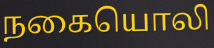
நகையொலி